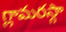
గ్లామరస్గా